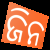
ଜିନ